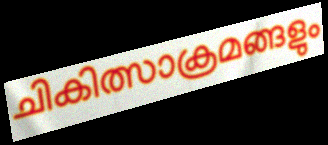
ചികിത്സാക്രമങ്ങളും